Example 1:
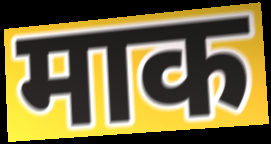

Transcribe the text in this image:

माक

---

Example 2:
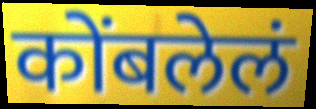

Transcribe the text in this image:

कोंबलेलं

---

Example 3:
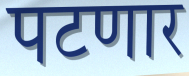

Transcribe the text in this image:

पटणार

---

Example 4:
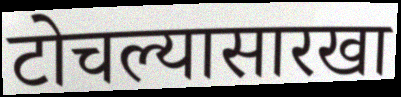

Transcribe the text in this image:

टोचल्यासारखा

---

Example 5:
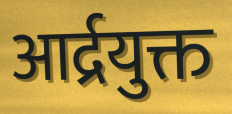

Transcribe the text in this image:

आर्द्रयुक्त